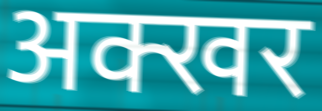
अक्खर